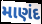
માણંદ